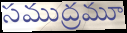
సముద్రమూ